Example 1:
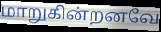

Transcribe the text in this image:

மாறுகின்றனவே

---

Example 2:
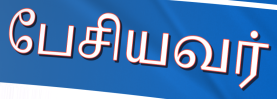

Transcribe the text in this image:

பேசியவர்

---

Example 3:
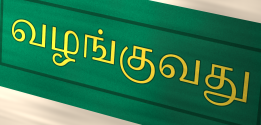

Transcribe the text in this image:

வழங்குவது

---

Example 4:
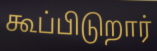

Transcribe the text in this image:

கூப்பிடுறார்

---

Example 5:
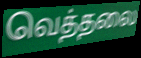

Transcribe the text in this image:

வெத்தலை